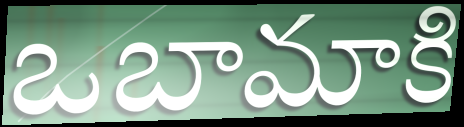
ఒబామాకి